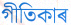
গীতিকাৰ